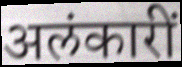
अलंकारीं